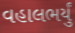
વહાલભર્યું